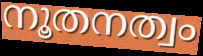
നൂതനത്വം